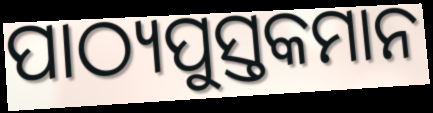
ପାଠ୍ୟପୁସ୍ତକମାନ